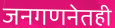
जनगणनेतही